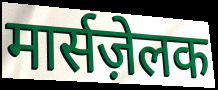
मार्सज़ेलक